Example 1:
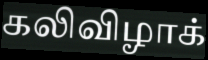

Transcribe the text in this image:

கலிவிழாக்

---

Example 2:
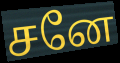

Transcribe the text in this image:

சனே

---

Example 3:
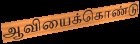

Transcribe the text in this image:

ஆவியைக்கொண்டு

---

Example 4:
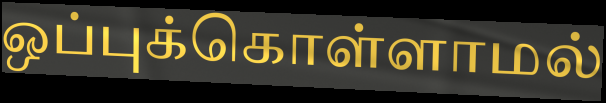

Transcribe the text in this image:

ஒப்புக்கொள்ளாமல்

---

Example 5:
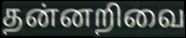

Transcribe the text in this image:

தன்னறிவை